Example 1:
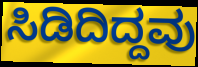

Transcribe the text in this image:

ಸಿಡಿದಿದ್ದವು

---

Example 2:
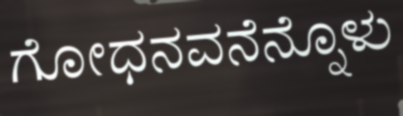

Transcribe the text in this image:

ಗೋಧನವನೆನ್ನೊಳು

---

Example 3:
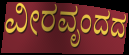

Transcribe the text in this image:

ವೀರವೃಂದದ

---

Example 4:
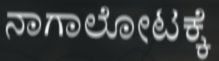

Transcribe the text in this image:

ನಾಗಾಲೋಟಕ್ಕೆ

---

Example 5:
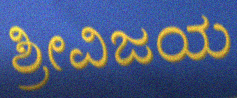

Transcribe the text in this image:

ಶ್ರೀವಿಜಯ